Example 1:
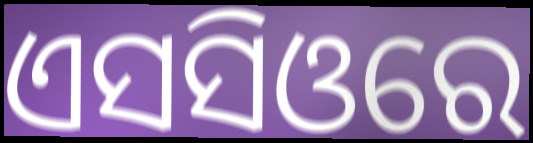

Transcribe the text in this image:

ଏସସିଓରେ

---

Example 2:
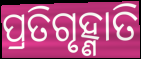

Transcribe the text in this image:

ପ୍ରତିଗୃହ୍ଣାତି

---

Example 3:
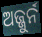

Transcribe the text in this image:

ଅଜ୍ଜୁର୍ନ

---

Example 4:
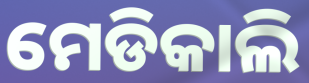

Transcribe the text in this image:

ମେଡିକାଲି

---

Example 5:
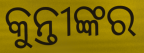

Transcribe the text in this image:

କୁନ୍ତୀଙ୍କର